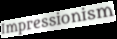
Impressionism